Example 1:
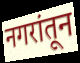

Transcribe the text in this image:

नगरांतून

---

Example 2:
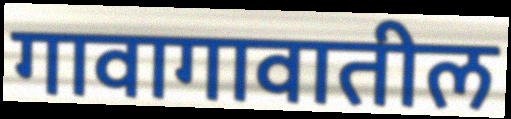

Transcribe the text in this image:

गावागावातील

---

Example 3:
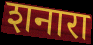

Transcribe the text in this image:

शनारा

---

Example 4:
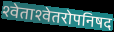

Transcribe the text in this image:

श्वेताश्वेतरोपनिषद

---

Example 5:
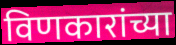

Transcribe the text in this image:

विणकारांच्या